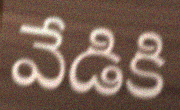
వేడికి